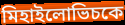
মিহাইলোভিচকে